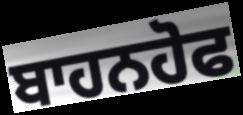
ਬਾਹਨਹੋਫ